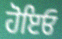
ਹੋਇਓ